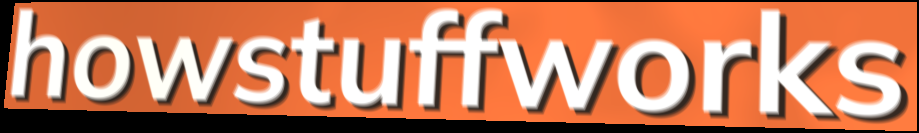
howstuffworks